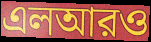
এলআরও